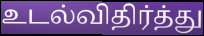
உடல்விதிர்த்து